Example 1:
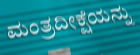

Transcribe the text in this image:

ಮಂತ್ರದೀಕ್ಷೆಯನ್ನು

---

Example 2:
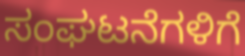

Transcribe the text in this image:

ಸಂಘಟನೆಗಳಿಗೆ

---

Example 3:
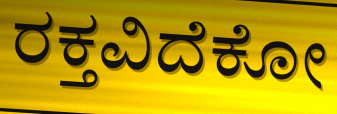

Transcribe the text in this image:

ರಕ್ತವಿದೆಕೋ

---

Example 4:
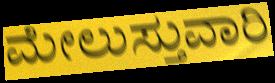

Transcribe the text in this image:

ಮೇಲುಸ್ತುವಾರಿ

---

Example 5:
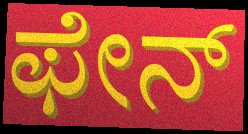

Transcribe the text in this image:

ಫೇನ್